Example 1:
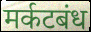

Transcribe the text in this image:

मर्कटबंध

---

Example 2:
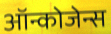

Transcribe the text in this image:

ऑन्कोजेन्स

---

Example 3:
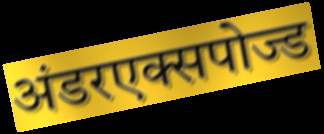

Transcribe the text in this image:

अंडरएक्सपोज्ड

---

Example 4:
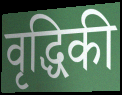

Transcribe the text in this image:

वृद्धिकी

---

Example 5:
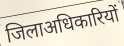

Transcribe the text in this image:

जिलाअधिकारियों